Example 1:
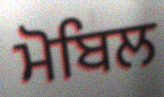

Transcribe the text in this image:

ਮੋਬਿਲ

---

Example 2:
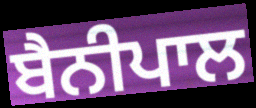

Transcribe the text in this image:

ਬੈਨੀਪਾਲ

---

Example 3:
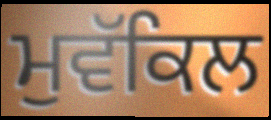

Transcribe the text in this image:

ਮੁਵੱਕਿਲ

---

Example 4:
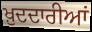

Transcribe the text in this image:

ਖ਼ੁਦਦਾਰੀਆਂ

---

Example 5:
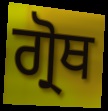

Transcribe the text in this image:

ਗ੍ਰੋਥ